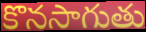
కొనసాగుతు